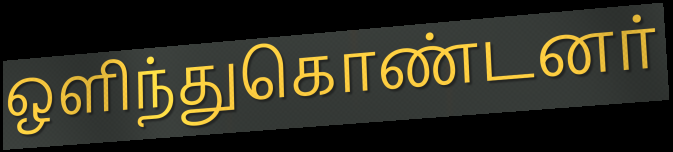
ஒளிந்துகொண்டனர்